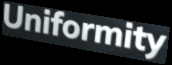
Uniformity